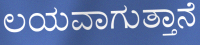
ಲಯವಾಗುತ್ತಾನೆ